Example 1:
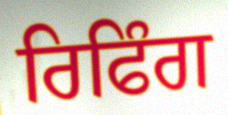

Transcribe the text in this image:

ਰਿਫਿੰਗ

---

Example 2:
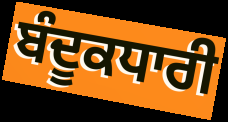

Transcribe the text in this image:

ਬੰਦੂਕਧਾਰੀ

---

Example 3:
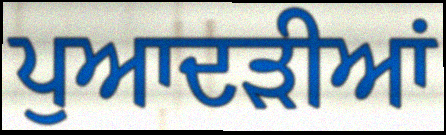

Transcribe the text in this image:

ਪੁਆਦੜੀਆਂ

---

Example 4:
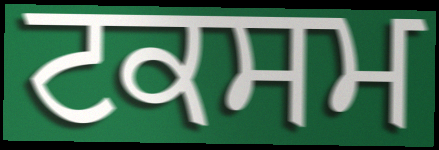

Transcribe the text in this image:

ਟਕਸਮ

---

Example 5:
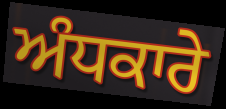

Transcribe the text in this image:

ਅੰਧਕਾਰੇ